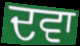
ਦਵਾ